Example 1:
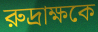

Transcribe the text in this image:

রুদ্রাক্ষকে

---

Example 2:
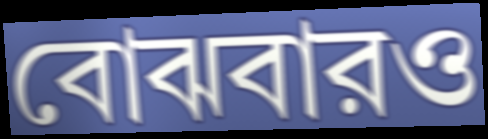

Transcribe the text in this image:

বোঝবারও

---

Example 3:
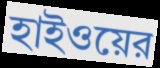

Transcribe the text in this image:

হাইওয়ের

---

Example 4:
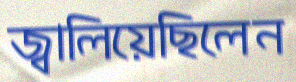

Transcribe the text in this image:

জ্বালিয়েছিলেন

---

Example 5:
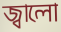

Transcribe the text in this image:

জ্বালো